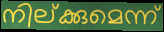
നില്ക്കുമെന്ന്